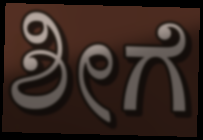
ಶೀಗೆ